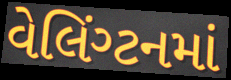
વેલિંગ્ટનમાં